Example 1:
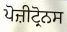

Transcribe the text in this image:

ਪੋਜ਼ੀਟ੍ਰੋਨਸ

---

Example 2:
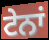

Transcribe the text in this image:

ਟੇਨਾਂ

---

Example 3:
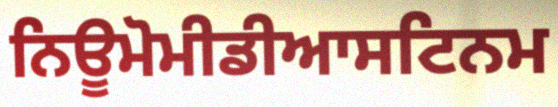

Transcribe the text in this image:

ਨਿਊਮੋਮੀਡੀਆਸਟਿਨਮ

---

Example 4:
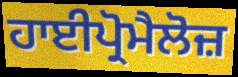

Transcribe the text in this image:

ਹਾਈਪ੍ਰੋਮੈਲੋਜ਼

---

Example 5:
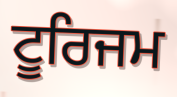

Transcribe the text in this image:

ਟੂਰਿਜਮ